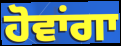
ਹੋਵਾਂਗਾ